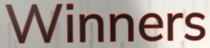
Winners